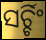
ସର୍ଚ୍ଚିଂ